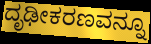
ದೃಢೀಕರಣವನ್ನೂ